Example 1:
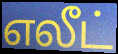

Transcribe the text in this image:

எலீட்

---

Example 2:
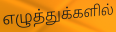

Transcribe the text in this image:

எழுத்துக்களில்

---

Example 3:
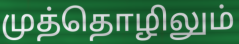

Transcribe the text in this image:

முத்தொழிலும்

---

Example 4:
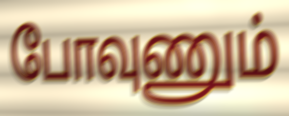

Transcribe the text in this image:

போவுணும்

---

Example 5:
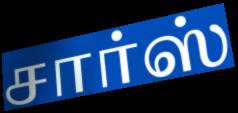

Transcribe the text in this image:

சார்ஸ்